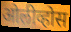
ओलीव्होस